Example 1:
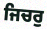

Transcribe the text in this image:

ਜਿਚਰੁ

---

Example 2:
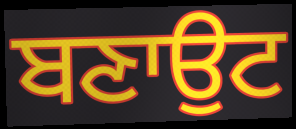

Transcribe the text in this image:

ਬਣਾਉਟ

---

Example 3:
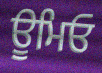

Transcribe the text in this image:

ਊਮਿਓ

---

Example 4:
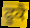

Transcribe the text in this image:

ਫੂਕੈ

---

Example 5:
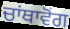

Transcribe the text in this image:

ਚਾਂਥਾਵੋਂਗ